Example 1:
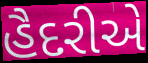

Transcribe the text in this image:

હૈદરીએ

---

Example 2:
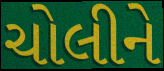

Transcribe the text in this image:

ચોલીને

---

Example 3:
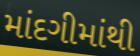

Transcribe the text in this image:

માંદગીમાંથી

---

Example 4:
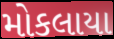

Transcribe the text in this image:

મોકલાયા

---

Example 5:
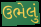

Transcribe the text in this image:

ઉભેલું